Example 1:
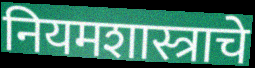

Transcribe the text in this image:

नियमशास्त्राचे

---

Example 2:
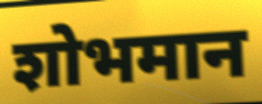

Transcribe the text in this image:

शोभमान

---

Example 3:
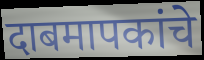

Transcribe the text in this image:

दाबमापकांचे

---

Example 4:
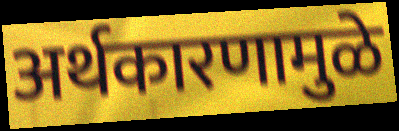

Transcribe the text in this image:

अर्थकारणामुळे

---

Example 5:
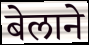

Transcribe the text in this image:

बेलाने